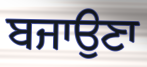
ਬਜਾਉਣਾ